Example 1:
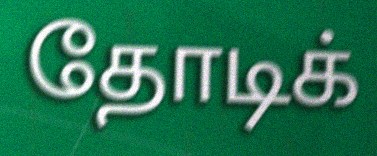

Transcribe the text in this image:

தோடிக்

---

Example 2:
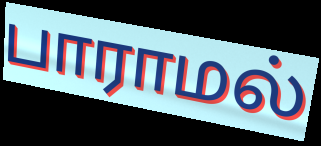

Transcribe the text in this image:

பாராமல்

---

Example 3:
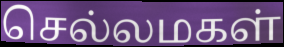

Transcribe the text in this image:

செல்லமகள்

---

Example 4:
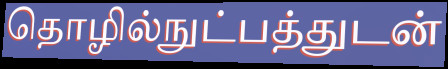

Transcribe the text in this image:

தொழில்நுட்பத்துடன்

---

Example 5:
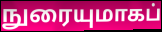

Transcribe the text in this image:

நுரையுமாகப்